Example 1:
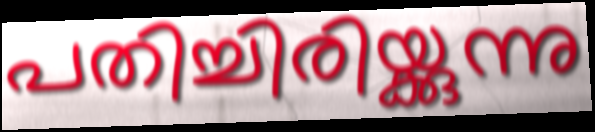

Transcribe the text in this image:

പതിച്ചിരിയ്ക്കുന്നു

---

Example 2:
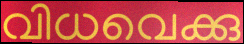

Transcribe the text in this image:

വിധവെക്കു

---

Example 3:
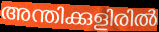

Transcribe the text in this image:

അന്തിക്കുളിരിൽ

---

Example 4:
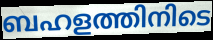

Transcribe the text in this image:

ബഹളത്തിനിടെ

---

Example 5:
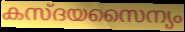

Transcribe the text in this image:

കസ്ദയസൈന്യം